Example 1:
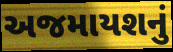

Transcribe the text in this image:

અજમાયશનું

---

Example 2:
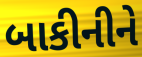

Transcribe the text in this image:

બાકીનીને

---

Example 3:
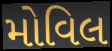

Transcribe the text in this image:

મોવિલ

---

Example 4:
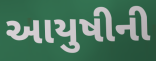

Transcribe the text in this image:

આયુષીની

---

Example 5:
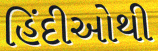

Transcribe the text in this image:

હિંદીઓથી